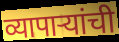
व्यापाऱ्यांची